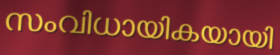
സംവിധായികയായി